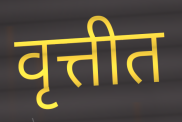
वृत्तीत